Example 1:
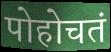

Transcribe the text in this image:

पोहोचतं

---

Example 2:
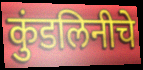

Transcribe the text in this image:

कुंडलिनीचे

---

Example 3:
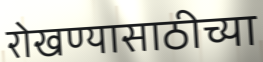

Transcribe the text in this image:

रोखण्यासाठीच्या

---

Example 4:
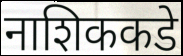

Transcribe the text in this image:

नाशिककडे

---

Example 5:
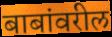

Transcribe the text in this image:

बाबांवरील